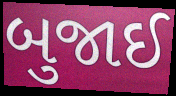
બુજાઈ